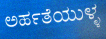
ಅರ್ಹತೆಯುಳ್ಳ